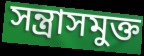
সন্ত্রাসমুক্ত